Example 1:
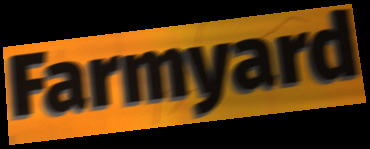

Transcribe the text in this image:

Farmyard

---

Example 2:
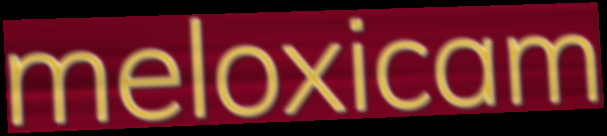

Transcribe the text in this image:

meloxicam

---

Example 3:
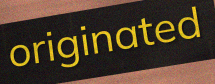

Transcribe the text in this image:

originated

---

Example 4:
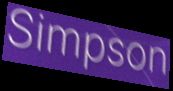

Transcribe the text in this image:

Simpson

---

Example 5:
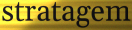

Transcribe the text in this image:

stratagem